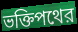
ভক্তিপথের